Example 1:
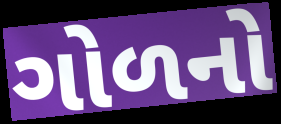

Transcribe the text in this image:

ગોળનો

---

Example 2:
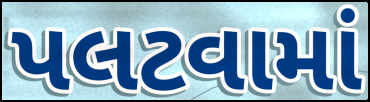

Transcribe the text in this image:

પલટવામાં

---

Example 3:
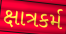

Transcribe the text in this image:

ક્ષાત્રકર્મ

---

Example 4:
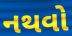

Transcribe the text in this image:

નથવો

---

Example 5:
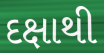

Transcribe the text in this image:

દક્ષાથી